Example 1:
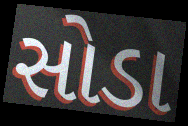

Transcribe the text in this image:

સોડા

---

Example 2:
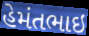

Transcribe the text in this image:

હેમંતભાઇ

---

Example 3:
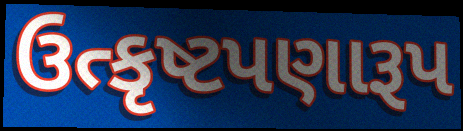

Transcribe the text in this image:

ઉત્કૃષ્ટપણારૂપ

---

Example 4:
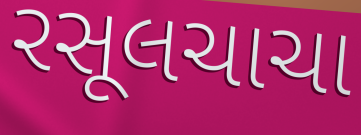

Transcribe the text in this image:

રસૂલચાચા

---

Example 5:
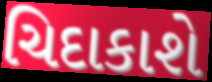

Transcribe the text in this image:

ચિદાકાશે